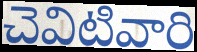
చెవిటివారి